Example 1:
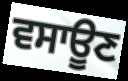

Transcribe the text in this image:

ਵਸਾਊਣ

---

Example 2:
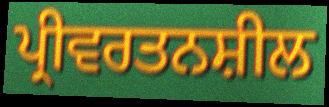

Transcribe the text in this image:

ਪ੍ਰੀਵਰਤਨਸ਼ੀਲ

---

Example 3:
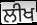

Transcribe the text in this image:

ਲੀਖ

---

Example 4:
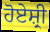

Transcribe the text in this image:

ਹੋਏਸ਼੍ਰੀ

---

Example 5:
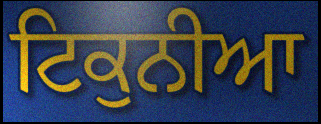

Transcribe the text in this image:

ਟਿਕੁਨੀਆ